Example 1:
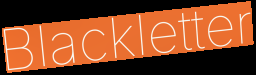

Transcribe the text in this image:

Blackletter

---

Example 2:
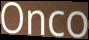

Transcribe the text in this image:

Onco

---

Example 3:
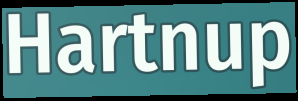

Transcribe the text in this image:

Hartnup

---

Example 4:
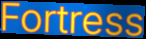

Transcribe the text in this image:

Fortress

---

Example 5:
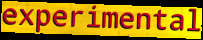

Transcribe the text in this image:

experimental